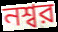
নশ্বর